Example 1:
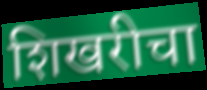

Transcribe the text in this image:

शिखरीचा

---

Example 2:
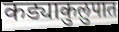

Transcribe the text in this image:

कड्याकुलुपात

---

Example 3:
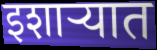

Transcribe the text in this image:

इशाऱ्यात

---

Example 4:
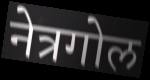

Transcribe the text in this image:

नेत्रगोल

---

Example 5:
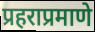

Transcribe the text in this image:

प्रहराप्रमाणे